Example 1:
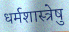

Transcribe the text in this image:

धर्मशास्त्रेषु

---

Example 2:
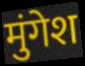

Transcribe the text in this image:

मुंगेश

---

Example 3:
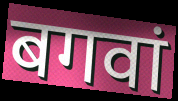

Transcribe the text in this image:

बगवां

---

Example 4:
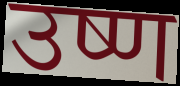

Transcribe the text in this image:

उष्ण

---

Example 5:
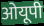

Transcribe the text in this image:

ओयूपी